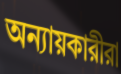
অন্যায়কারীরা